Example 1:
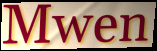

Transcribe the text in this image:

Mwen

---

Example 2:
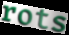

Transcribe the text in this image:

rots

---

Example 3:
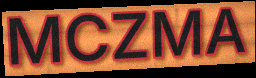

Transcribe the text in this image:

MCZMA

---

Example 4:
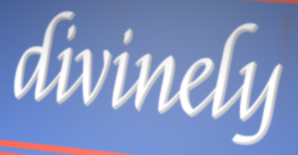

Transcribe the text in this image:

divinely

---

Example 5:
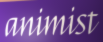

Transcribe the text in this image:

animist